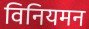
विनियमन